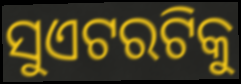
ସୁଏଟରଟିକୁ